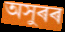
অসুৰৰ